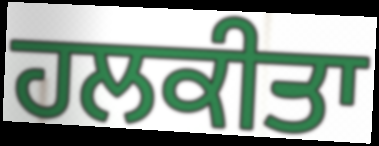
ਹਲਕੀਤਾ